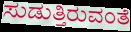
ಸುಡುತ್ತಿರುವಂತೆ